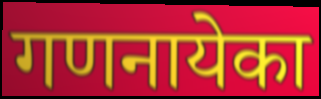
गणनायेका